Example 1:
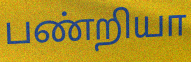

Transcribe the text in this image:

பண்றியா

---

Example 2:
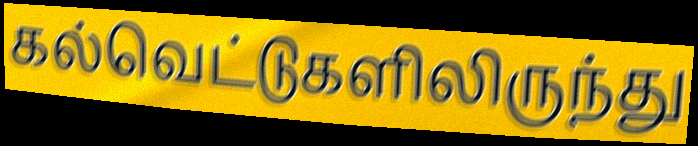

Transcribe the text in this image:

கல்வெட்டுகளிலிருந்து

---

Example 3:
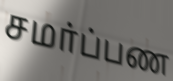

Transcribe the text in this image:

சமர்ப்பண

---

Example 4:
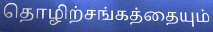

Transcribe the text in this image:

தொழிற்சங்கத்தையும்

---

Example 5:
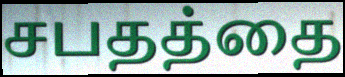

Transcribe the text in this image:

சபதத்தை